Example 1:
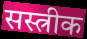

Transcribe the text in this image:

सस्त्रीक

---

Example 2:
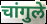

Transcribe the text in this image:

चांगुले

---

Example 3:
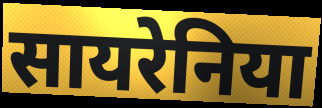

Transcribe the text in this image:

सायरेनिया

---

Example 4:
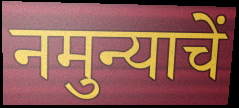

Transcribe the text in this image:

नमुन्याचें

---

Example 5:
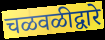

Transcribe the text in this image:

चळवळीद्वारे